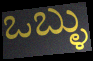
ಒಬ್ಳು